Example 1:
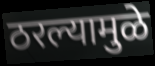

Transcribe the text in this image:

ठरल्यामुळे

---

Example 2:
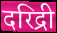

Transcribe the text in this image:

दरिद्री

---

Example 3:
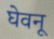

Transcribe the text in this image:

घेवनू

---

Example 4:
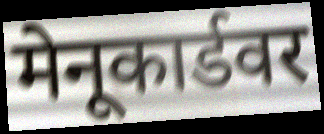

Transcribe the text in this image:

मेनूकार्डवर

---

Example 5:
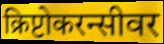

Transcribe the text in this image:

क्रिप्टोकरन्सीवर